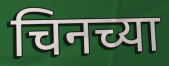
चिनच्या